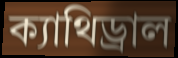
ক্যাথিড্রাল